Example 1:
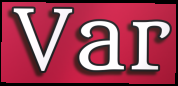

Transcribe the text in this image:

Var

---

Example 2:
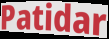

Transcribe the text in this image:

Patidar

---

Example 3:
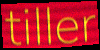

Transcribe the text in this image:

tiller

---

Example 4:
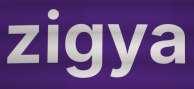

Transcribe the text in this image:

zigya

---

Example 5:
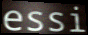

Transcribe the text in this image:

essi